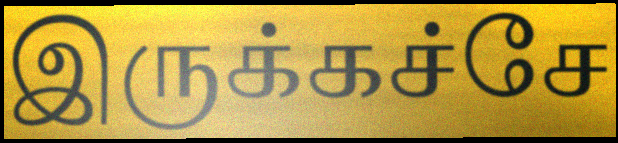
இருக்கச்சே